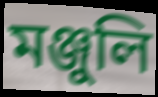
মঞ্জুলি